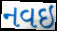
નવઇ